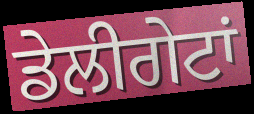
ਡੇਲੀਗੇਟਾਂ